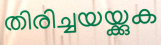
തിരിച്ചയയ്ക്കുക